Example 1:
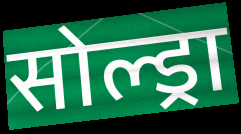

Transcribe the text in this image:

सोल्ड्रा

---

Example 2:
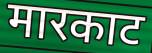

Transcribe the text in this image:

मारकाट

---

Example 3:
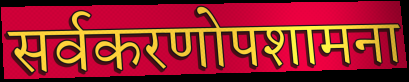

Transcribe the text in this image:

सर्वकरणोपशामना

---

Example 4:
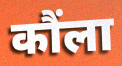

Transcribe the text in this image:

कौंला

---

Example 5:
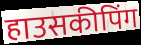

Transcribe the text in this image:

हाउसकीपिंग